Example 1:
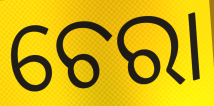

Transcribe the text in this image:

ଚେରା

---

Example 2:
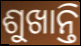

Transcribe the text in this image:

ଶୁଖାନ୍ତି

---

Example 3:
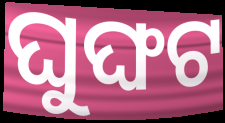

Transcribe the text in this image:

ଘୁଙ୍ଘଟ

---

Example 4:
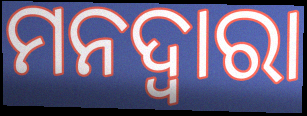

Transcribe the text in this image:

ମନଦ୍ଵାରା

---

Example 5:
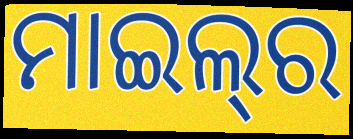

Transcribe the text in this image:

ମାଇଲ୍‍ର